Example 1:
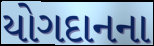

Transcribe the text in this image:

યોગદાનના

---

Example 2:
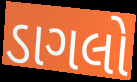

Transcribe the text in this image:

ડાગલો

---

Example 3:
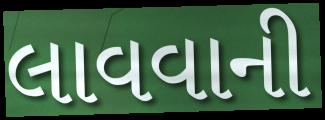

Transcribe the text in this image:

લાવવાની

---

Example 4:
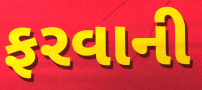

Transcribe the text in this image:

ફરવાની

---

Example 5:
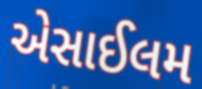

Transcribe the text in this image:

એસાઈલમ